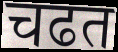
चढत